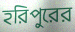
হরিপুরের